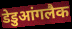
डेडुआंगलैक